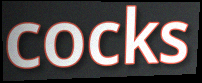
cocks